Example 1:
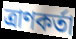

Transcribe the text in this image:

ত্ৰাণকৰ্তা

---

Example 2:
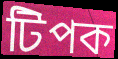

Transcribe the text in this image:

টিপক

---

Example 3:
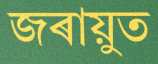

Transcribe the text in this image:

জৰায়ুত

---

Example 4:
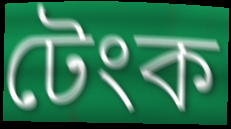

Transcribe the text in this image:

টেংক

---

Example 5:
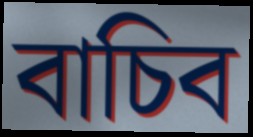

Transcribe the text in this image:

বাচিব